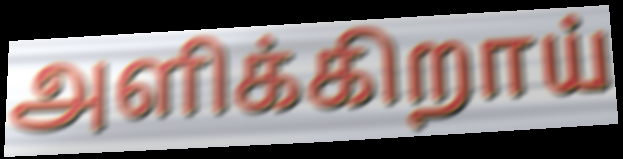
அளிக்கிறாய்